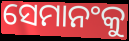
ସେମାନଂକୁ